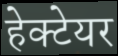
हेक्टेयर